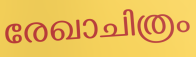
രേഖാചിത്രം